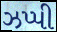
ઝપ્પી